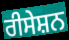
ਰੀਸੇਸ਼ਨ